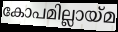
കോപമില്ലായ്മ